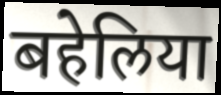
बहेलिया